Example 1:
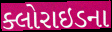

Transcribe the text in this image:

ક્લોરાઇડના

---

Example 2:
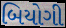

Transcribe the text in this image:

બિયોગી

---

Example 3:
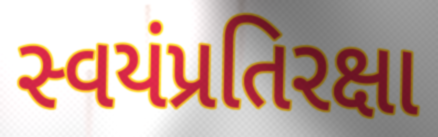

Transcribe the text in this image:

સ્વયંપ્રતિરક્ષા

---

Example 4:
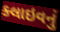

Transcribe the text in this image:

ક્લાઇવનું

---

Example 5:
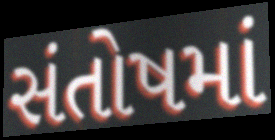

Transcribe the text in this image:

સંતોષમાં